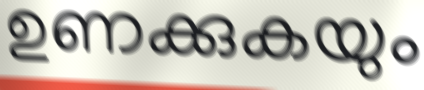
ഉണക്കുകയും